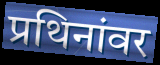
प्रथिनांवर